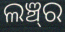
ଲଞ୍ଚ୍‍ର